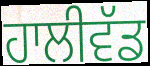
ਹਾਲੀਵੱਡ